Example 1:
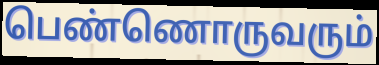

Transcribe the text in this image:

பெண்ணொருவரும்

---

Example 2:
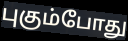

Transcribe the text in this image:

புகும்போது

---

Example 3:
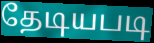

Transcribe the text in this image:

தேடியபடி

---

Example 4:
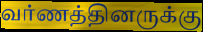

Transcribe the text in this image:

வர்ணத்தினருக்கு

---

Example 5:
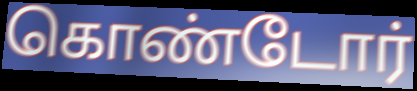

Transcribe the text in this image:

கொண்டோர்